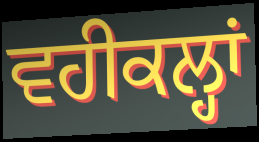
ਵਹੀਕਲ੍ਹਾਂ